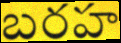
బరహ